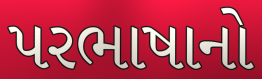
પરભાષાનો